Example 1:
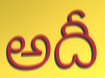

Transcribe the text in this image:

అదీ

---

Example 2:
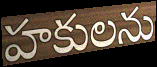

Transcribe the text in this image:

హకులను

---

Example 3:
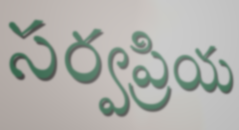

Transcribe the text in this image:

సర్వప్రియ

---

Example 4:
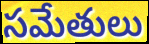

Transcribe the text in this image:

సమేతులు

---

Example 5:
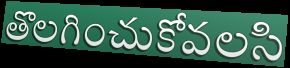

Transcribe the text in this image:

తొలగించుకోవలసి